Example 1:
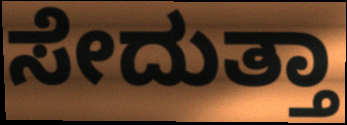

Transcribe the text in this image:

ಸೇದುತ್ತಾ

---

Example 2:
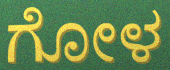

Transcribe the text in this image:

ಗೋಳ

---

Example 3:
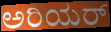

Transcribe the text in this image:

ಅರಿಯರ್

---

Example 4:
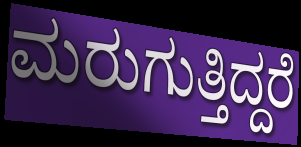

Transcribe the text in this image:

ಮರುಗುತ್ತಿದ್ದರೆ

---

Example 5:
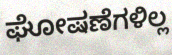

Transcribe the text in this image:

ಘೋಷಣೆಗಳಿಲ್ಲ